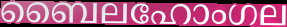
ബൈലഹോംഗല